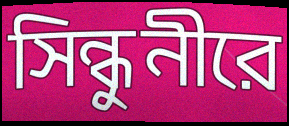
সিন্ধুনীরে